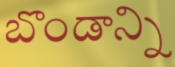
బొండాన్ని